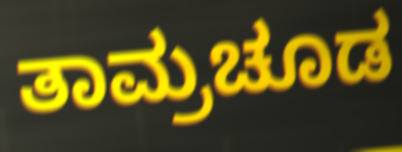
ತಾಮ್ರಚೂಡ